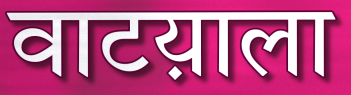
वाटय़ाला